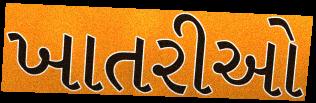
ખાતરીઓ